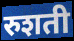
रुशती